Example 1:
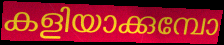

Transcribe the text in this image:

കളിയാക്കുമ്പോ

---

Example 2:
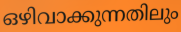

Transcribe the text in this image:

ഒഴിവാക്കുന്നതിലും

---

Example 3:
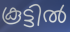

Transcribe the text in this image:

കൂട്ടിൽ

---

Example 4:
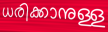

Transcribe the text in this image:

ധരിക്കാനുള്ള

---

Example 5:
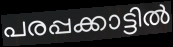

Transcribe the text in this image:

പരപ്പക്കാട്ടിൽ